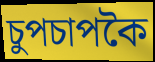
চুপচাপকৈ